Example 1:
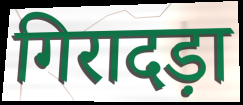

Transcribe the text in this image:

गिरादड़ा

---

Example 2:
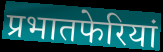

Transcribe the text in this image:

प्रभातफेरियां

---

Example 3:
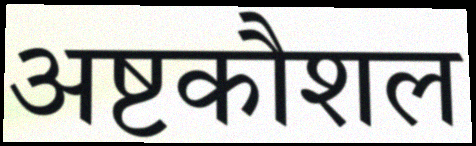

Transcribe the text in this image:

अष्टकौशल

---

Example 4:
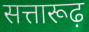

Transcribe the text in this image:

सत्तारूढ़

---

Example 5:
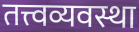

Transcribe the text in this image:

तत्त्वव्यवस्था